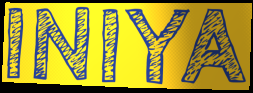
INIYA